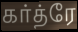
கர்த்ரே